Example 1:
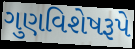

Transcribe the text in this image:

ગુણવિશેષરૂપે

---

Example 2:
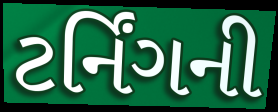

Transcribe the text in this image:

ટર્નિંગની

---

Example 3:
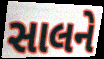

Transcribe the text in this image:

સાલને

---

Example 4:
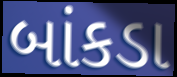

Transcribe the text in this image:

બાંકડા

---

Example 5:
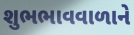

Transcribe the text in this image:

શુભભાવવાળાને